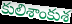
కులిశాంకుశ